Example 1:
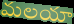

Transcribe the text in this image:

మలయా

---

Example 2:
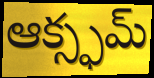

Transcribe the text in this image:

ఆక్స్ఫమ్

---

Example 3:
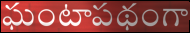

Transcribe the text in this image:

ఘంటాపథంగా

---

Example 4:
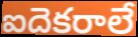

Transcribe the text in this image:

ఐదెకరాలే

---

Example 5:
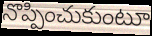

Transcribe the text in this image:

నొప్పించుకుంటూ